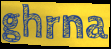
ghrna